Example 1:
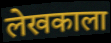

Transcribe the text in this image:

लेखकाला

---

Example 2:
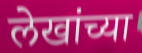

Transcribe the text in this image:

लेखांच्या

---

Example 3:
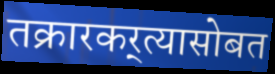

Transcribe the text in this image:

तक्रारकर्त्यासोबत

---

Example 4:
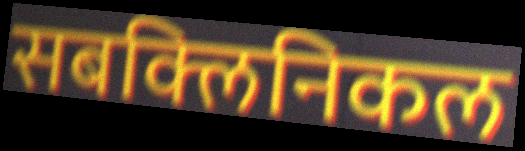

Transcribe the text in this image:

सबक्लिनिकल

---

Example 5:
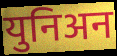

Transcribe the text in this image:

युनिअन